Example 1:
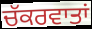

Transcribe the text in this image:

ਚੱਕਰਵਾਤਾਂ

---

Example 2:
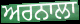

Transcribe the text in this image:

ਅਰਨਾਲਾ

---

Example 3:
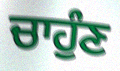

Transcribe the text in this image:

ਚਾਹੁੰਣ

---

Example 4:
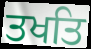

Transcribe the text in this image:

ਤਖਤਿ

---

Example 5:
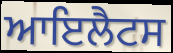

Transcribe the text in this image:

ਆਇਲੈਟਸ